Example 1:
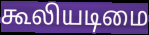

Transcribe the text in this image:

கூலியடிமை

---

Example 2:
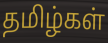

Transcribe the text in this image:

தமிழ்கள்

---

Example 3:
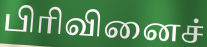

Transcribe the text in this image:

பிரிவினைச்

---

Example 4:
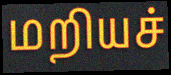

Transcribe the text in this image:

மறியச்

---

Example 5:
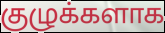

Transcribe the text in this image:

குழுக்களாக